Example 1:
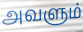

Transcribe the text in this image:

அவளும்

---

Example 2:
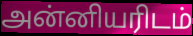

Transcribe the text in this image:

அன்னியரிடம்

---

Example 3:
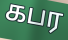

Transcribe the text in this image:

கபர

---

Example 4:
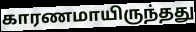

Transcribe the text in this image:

காரணமாயிருந்தது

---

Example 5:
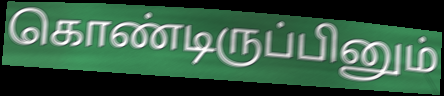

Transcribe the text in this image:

கொண்டிருப்பினும்